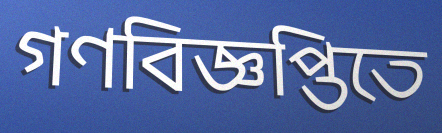
গণবিজ্ঞপ্তিতে